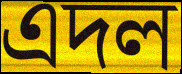
এদল